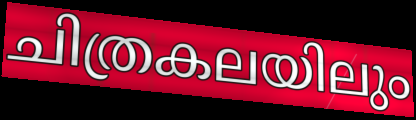
ചിത്രകലയിലും